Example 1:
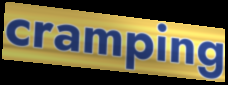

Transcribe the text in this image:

cramping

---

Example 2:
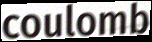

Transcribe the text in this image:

coulomb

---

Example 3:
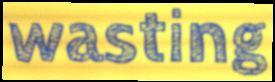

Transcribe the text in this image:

wasting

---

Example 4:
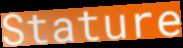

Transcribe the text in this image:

Stature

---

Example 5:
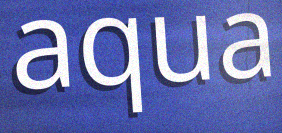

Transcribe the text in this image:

aqua